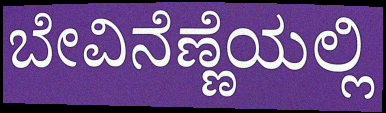
ಬೇವಿನೆಣ್ಣೆಯಲ್ಲಿ